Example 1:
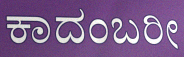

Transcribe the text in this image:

ಕಾದಂಬರೀ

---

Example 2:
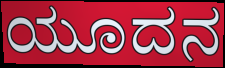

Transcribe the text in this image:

ಯೂದನ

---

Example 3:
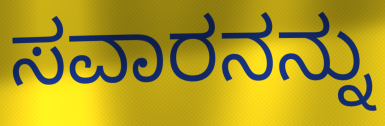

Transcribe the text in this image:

ಸವಾರನನ್ನು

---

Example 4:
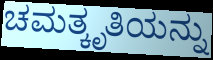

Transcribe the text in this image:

ಚಮತ್ಕೃತಿಯನ್ನು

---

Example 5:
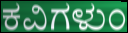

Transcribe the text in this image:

ಕವಿಗಳುಂ